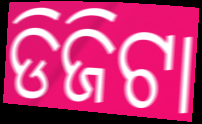
ଡିଜିଟା